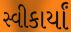
સ્વીકાર્યાં